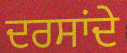
ਦਰਸਾਂਦੇ